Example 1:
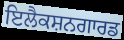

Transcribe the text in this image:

ਇਲੈਕਸ਼ਨਗਾਰਡ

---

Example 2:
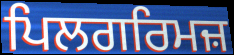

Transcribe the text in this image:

ਪਿਲਗਰਿਮਜ਼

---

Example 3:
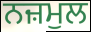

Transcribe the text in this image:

ਨਜ਼ਮੁਲ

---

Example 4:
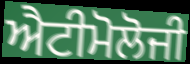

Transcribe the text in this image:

ਐਟੀਮੋਲੋਜੀ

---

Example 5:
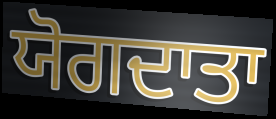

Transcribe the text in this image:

ਯੋਗਦਾਤਾ